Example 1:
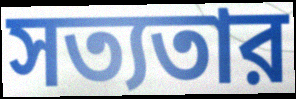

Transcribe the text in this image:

সত্যতার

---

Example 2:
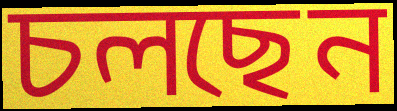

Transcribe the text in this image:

চলছেন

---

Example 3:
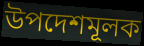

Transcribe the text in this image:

উপদেশমূলক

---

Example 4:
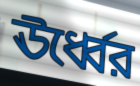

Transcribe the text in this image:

ঊর্ধ্বের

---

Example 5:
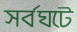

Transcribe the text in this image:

সর্বঘটে